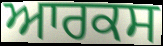
ਆਰਕਸ